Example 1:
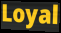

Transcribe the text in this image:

Loyal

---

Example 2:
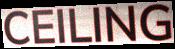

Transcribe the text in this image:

CEILING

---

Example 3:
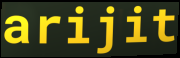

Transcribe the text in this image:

arijit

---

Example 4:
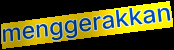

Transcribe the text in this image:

menggerakkan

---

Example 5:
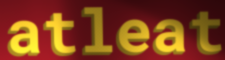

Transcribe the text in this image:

atleat